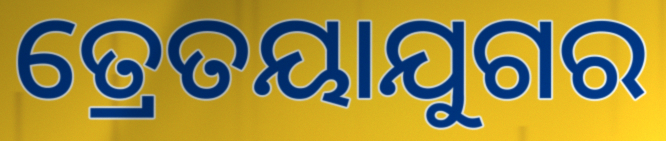
ତ୍ରେତୟାଯୁଗର